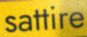
sattire